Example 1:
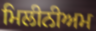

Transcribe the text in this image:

ਮਿਲੀਨੀਅਮ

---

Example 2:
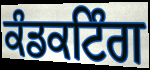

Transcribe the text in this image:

ਕੰਡਕਟਿੰਗ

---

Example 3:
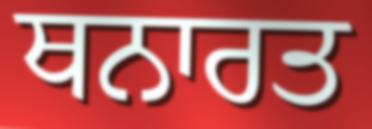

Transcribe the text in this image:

ਥਨਾਰਤ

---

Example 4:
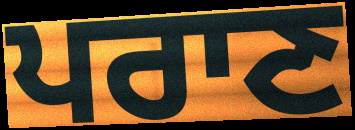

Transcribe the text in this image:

ਪਰਾਣ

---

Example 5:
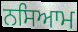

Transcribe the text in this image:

ਨਸਿਆਮ